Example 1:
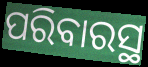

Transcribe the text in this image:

ପରିବାରସ୍ଥ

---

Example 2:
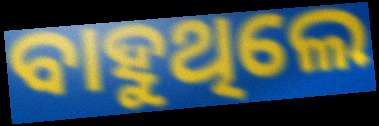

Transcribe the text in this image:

ବାହୁଥିଲେ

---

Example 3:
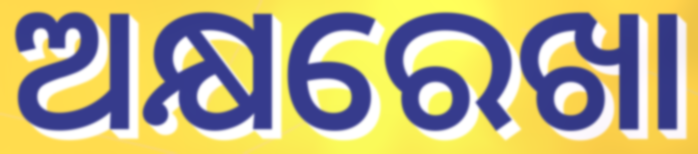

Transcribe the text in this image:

ଅକ୍ଷରେଖା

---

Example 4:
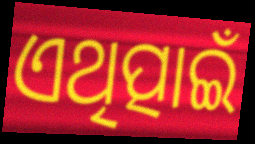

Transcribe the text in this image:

ଏଥିତ୍ପାଇଁ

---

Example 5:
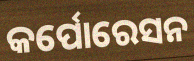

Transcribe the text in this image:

କର୍ପୋରେସନ